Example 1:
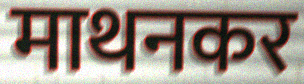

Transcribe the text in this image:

माथनकर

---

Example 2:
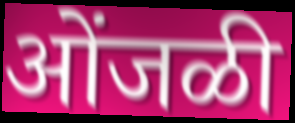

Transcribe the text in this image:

ओंजळी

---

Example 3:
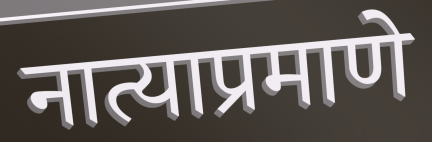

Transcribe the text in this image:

नात्याप्रमाणे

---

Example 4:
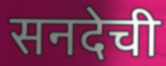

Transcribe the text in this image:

सनदेची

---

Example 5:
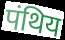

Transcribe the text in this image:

पंथिय